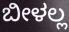
ಬೀಳಲ್ಲ